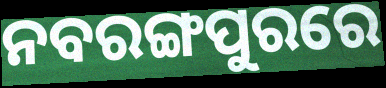
ନବରଙ୍ଗପୁରରେ